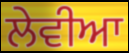
ਲੇਵੀਆ